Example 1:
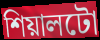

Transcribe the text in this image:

শিয়ালটো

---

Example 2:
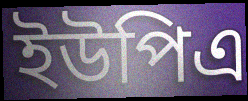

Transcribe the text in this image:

ইউপিএ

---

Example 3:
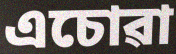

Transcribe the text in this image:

এচোৱা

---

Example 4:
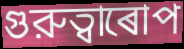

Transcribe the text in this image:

গুৰুত্বাৰোপ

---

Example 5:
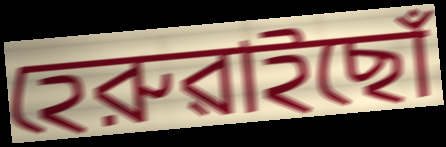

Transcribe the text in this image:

হেৰুৱাইছোঁ